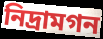
নিদ্রামগন